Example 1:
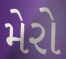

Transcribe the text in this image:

મેરો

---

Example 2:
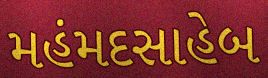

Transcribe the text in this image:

મહંમદસાહેબ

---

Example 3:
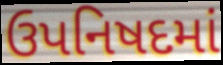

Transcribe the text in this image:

ઉપનિષદમાં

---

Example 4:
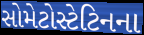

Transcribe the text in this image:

સોમેટોસ્ટેટિનના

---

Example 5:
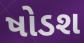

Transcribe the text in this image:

ષોડશ